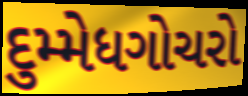
દુમ્મેધગોચરો